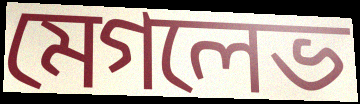
মেগলেভ